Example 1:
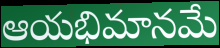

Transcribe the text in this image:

ఆయభిమానమే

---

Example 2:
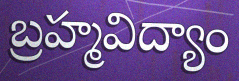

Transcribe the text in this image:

బ్రహ్మవిద్యాం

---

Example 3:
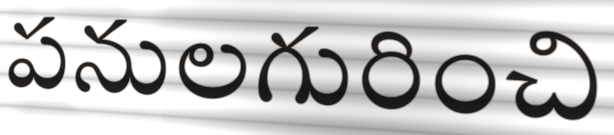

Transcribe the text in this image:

పనులగురించి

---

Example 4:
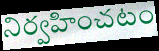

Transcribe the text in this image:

నిర్వహించటం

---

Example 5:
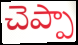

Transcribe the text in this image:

చెప్పా